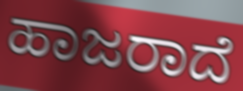
ಹಾಜರಾದೆ